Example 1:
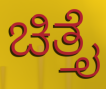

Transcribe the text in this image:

ಚಿತ್ತೈ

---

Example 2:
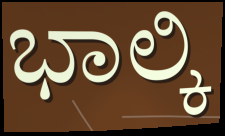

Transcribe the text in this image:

ಭಾಲ್ಕಿ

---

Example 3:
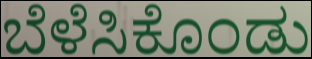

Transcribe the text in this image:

ಬೆಳೆಸಿಕೊಂಡು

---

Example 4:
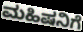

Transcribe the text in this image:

ಮಹಿಷನಿಗೆ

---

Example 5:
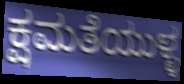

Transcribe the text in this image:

ಕ್ಷಮತೆಯುಳ್ಳ